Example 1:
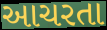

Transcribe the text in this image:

આચરતા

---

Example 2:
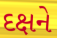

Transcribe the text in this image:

દક્ષને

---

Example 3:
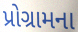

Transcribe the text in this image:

પ્રોગ્રામના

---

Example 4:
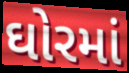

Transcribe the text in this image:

ઘોરમાં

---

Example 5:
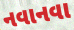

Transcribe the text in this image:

નવાનવા